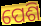
ପେଶି